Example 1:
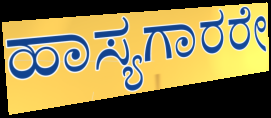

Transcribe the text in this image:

ಹಾಸ್ಯಗಾರರೇ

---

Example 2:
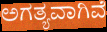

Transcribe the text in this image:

ಅಗತ್ಯವಾಗಿವೆ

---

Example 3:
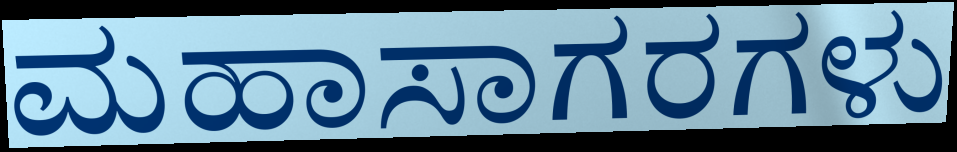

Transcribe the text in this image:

ಮಹಾಸಾಗರಗಳು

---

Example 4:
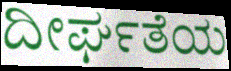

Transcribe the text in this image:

ದೀರ್ಘತೆಯ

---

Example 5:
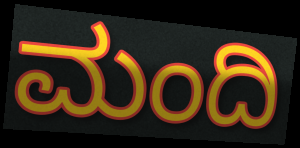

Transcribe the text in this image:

ಮಂದಿ